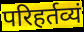
परिहर्तव्यं